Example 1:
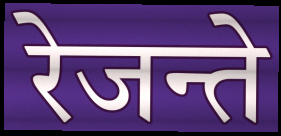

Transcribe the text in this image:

रेजन्ते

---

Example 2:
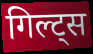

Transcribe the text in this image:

गिल्ट्स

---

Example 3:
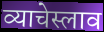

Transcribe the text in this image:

व्याचेस्लाव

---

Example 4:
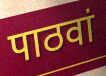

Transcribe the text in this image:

पाठवां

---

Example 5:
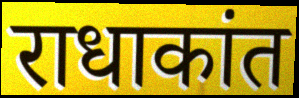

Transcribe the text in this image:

राधाकांत